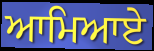
ਆਮਿਆਏ